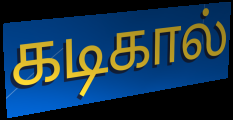
கடிகால்